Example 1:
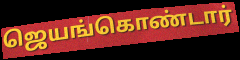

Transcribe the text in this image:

ஜெயங்கொண்டார்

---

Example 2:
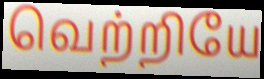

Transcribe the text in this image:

வெற்றியே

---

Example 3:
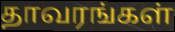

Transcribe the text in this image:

தாவரங்கள்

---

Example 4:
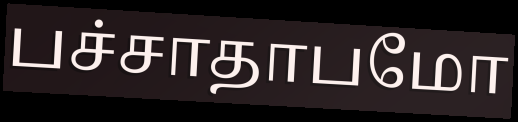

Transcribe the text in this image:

பச்சாதாபமோ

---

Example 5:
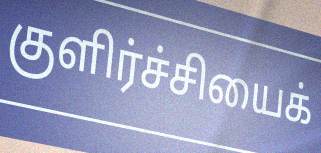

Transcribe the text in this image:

குளிர்ச்சியைக்